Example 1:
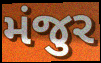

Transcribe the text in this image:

મંજુર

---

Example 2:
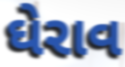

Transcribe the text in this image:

ઘેરાવ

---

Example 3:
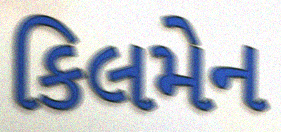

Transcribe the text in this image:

કિલમેન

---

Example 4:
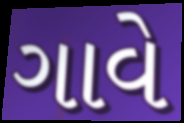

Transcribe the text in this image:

ગાવે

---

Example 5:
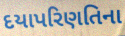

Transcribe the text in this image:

દયાપરિણતિના